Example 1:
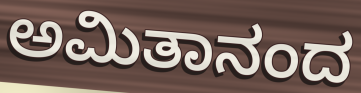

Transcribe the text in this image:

ಅಮಿತಾನಂದ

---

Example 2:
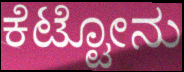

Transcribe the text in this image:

ಕೆಟ್ಟೋನು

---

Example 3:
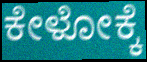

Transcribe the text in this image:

ಕೇಳೋಕ್ಕೆ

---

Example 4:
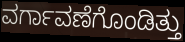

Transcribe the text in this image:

ವರ್ಗಾವಣೆಗೊಂಡಿತ್ತು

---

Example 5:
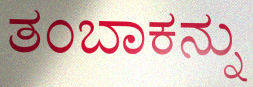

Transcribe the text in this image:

ತಂಬಾಕನ್ನು